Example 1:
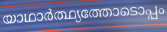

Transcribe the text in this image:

യാഥാർത്ഥ്യത്തോടൊപ്പം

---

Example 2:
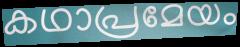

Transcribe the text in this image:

കഥാപ്രമേയം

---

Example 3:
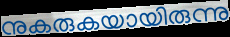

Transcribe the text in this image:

നുകരുകയായിരുന്നു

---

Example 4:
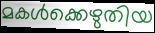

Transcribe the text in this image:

മകൾക്കെഴുതിയ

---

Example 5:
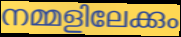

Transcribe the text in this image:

നമ്മളിലേക്കും